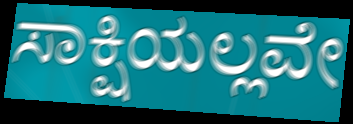
ಸಾಕ್ಷಿಯಲ್ಲವೇ